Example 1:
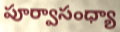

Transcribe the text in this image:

పూర్వాసంధ్యా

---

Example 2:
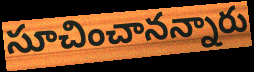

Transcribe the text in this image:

సూచించానన్నారు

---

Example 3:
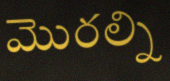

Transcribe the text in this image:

మొరల్ని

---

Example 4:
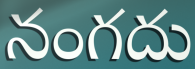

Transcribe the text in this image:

నంగదు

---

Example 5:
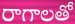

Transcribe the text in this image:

రాగాలతో